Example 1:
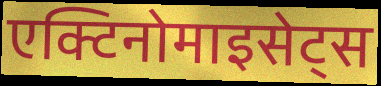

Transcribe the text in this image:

एक्टिनोमाइसेट्स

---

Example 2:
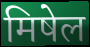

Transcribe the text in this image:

मिषेल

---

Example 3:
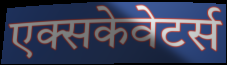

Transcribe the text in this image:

एक्सकेवेटर्स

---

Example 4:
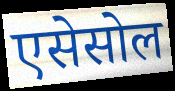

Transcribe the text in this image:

एसेसोल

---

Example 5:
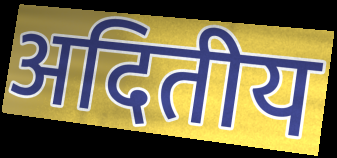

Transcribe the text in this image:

अदितीय